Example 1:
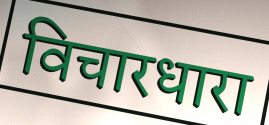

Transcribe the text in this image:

विचारधारा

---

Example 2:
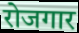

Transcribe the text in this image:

रोजगार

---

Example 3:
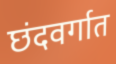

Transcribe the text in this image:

छंदवर्गात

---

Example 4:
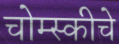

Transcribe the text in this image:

चोम्स्कीचे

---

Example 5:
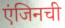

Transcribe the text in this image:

एंजिनची